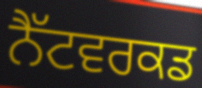
ਨੈੱਟਵਰਕਡ